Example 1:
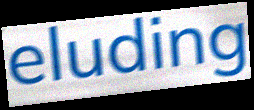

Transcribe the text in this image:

eluding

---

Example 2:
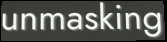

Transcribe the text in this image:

unmasking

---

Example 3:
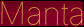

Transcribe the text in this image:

Manta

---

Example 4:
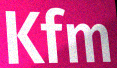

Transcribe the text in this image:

Kfm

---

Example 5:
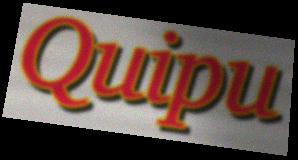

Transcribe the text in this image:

Quipu